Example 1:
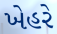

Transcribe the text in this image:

ખેહરે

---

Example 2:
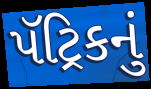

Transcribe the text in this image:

પૅટ્રિકનું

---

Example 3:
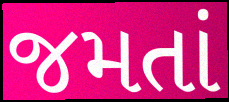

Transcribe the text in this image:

જમતાં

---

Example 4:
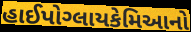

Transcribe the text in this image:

હાઈપોગ્લાયકેમિઆનો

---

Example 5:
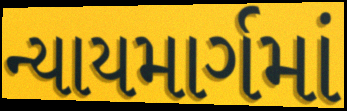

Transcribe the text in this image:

ન્યાયમાર્ગમાં